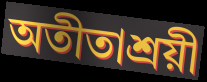
অতীতাশ্রয়ী